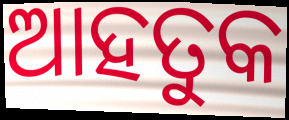
ଆହତୁକ